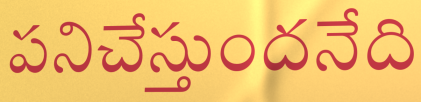
పనిచేస్తుందనేది